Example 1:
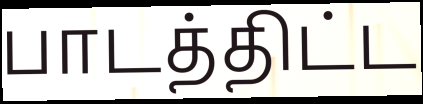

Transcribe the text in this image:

பாடத்திட்ட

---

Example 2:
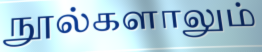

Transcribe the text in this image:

நூல்களாலும்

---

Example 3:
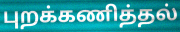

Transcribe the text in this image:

புறக்கணித்தல்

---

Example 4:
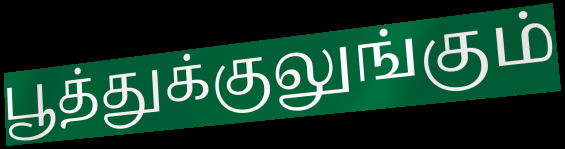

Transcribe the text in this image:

பூத்துக்குலுங்கும்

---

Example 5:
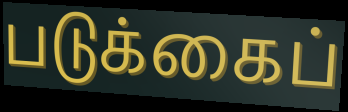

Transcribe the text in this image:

படுக்கைப்